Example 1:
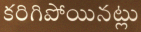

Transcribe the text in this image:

కరిగిపోయినట్లు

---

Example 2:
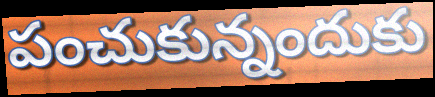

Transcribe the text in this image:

పంచుకున్నందుకు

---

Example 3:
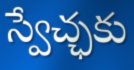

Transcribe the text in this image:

స్వేచ్ఛకు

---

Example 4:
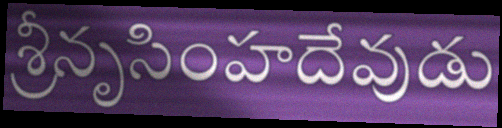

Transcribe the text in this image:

శ్రీనృసింహదేవుడు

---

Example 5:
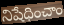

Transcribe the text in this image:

నిషేధించాం